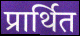
प्रार्थित